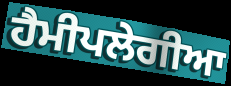
ਹੈਮੀਪਲੇਗੀਆ